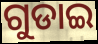
ଗୁଡାଇ